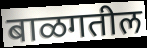
बाळगतील